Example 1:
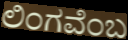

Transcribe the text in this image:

ಲಿಂಗವೆಂಬ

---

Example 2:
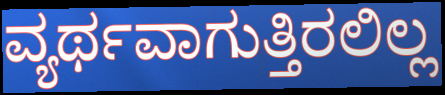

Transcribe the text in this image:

ವ್ಯರ್ಥವಾಗುತ್ತಿರಲಿಲ್ಲ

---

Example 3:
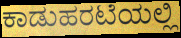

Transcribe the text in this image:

ಕಾಡುಹರಟೆಯಲ್ಲಿ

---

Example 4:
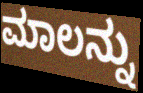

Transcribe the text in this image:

ಮಾಲನ್ನು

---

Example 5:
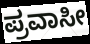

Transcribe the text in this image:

ಪ್ರವಾಸೀ